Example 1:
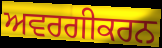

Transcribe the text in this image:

ਅਵਰਗੀਕਰਨ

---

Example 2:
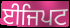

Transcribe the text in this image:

ਈਜਿਪਟ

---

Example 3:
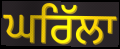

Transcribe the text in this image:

ਘਰਿੱਲਾ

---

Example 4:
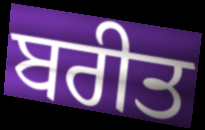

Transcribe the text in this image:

ਬਰੀਤ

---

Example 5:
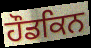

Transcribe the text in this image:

ਹੌਡਕਿਨ